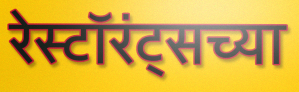
रेस्टॉरंट्सच्या